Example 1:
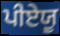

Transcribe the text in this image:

ਪੀਏਯੂ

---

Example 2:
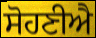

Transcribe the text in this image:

ਸੋਹਣੀਐ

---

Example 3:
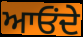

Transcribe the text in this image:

ਆਓਂਦੇ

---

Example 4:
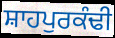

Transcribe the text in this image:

ਸ਼ਾਹਪੁਰਕੰਢੀ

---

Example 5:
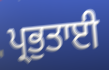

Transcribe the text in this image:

ਪ੍ਰਭੁਤਾਈ